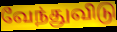
வேந்துவிடு